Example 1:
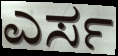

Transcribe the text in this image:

ಎರ್ಸ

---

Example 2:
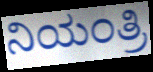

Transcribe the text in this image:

ನಿಯಂತ್ರಿ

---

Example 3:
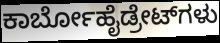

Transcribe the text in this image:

ಕಾರ್ಬೋಹೈಡ್ರೇಟ್‌ಗಳು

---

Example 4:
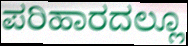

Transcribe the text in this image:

ಪರಿಹಾರದಲ್ಲೂ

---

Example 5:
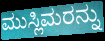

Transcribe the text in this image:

ಮುಸ್ಲಿಮರನ್ನು